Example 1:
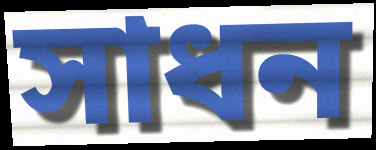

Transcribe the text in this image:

সাধন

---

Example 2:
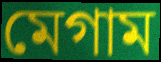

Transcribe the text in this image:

মেগাম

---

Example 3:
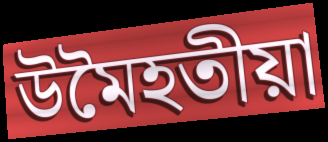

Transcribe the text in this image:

উমৈহতীয়া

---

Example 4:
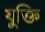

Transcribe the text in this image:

যুক্তি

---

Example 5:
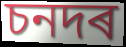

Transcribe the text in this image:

চনদৰ